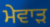
ਮੇਵਾੜ